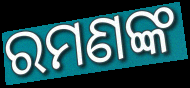
ରମଣଙ୍କ